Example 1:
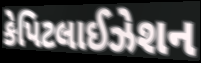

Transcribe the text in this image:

કેપિટલાઈઝેશન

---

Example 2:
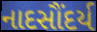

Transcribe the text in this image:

નાદસૌંદર્ય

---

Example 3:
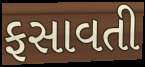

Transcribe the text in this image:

ફસાવતી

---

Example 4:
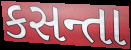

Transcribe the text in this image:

કસન્તા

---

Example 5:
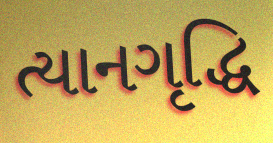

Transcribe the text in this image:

ત્યાનગૃદ્ધિ